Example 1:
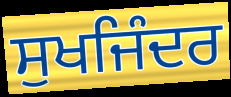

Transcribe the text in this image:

ਸੁਖਜਿੰਦਰ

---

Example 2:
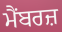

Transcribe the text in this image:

ਮੈਂਬਰਜ਼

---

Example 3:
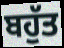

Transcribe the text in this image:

ਬਹੁੱਤ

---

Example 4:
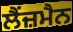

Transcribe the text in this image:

ਲੈਂਜ਼ਮੈਨ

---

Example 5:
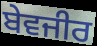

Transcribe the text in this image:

ਬੇਵਜੀਰ